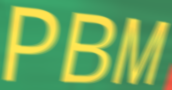
PBM